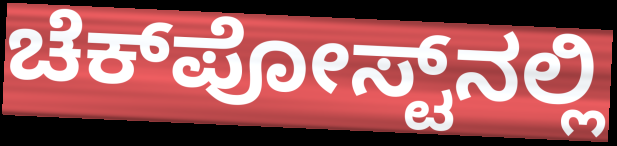
ಚೆಕ್‌ಪೋಸ್ಟ್‌ನಲ್ಲಿ